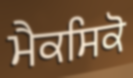
ਮੈਕਸਿਕੋ